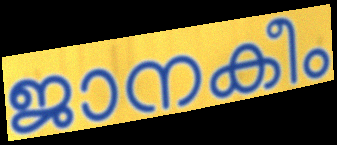
ജാനകീം